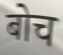
बोच